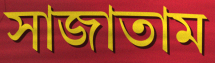
সাজাতাম